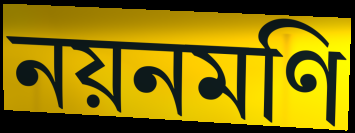
নয়নমণি